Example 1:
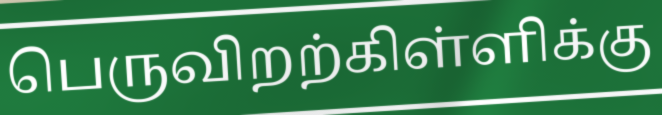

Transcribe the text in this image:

பெருவிறற்கிள்ளிக்கு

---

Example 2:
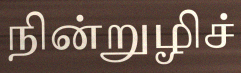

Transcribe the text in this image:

நின்றுழிச்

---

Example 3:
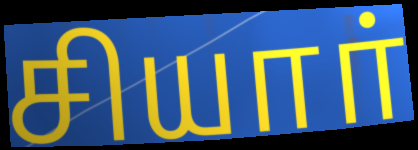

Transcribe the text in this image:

சியார்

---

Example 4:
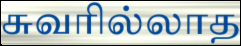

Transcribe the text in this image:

சுவரில்லாத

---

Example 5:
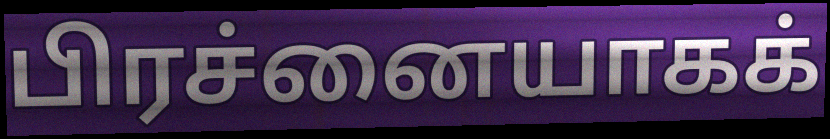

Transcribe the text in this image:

பிரச்னையாகக்